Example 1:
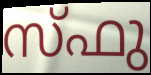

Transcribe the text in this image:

സ്ഫു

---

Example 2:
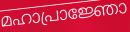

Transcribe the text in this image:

മഹാപ്രാജ്ഞോ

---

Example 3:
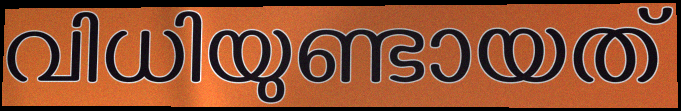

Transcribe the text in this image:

വിധിയുണ്ടായത്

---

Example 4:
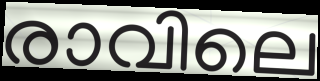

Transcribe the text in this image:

രാവിലെ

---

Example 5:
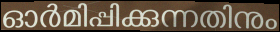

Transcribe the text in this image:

ഓർമിപ്പിക്കുന്നതിനും